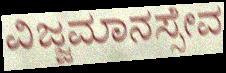
ವಿಜ್ಜಮಾನಸ್ಸೇವ